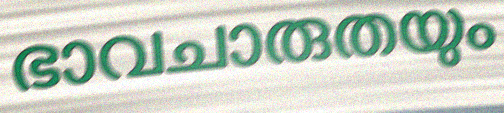
ഭാവചാരുതയും